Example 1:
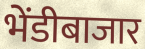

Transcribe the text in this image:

भेंडीबाजार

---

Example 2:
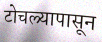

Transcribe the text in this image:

टोचल्यापासून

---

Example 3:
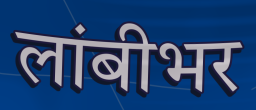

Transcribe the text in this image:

लांबीभर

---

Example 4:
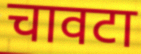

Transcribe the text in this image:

चावटा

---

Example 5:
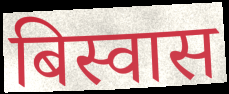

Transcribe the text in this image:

बिस्वास